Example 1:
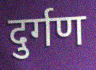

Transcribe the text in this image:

दुर्गण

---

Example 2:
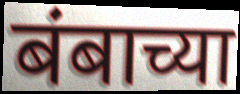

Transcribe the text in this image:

बंबाच्या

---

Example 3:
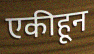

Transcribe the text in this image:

एकीहून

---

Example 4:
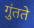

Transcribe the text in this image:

गुंतते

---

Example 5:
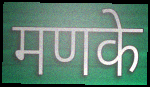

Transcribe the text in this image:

मणके